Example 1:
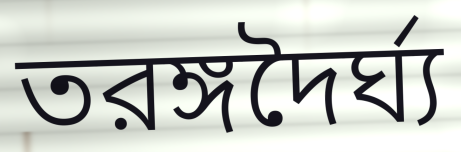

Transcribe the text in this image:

তরঙ্গদৈর্ঘ্য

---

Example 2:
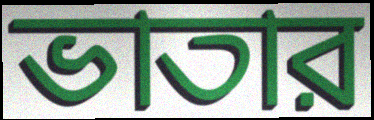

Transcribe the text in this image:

ভাতার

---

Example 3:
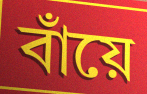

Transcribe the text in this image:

বাঁয়ে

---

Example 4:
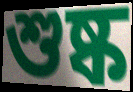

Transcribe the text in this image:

শুষ্ক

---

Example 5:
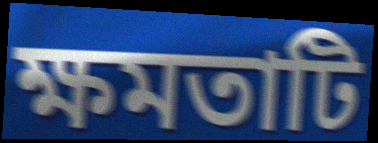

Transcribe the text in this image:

ক্ষমতাটি